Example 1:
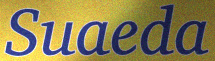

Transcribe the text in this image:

Suaeda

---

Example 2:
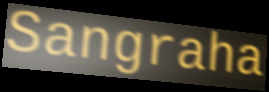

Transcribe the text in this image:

Sangraha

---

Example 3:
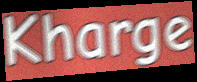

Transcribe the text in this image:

Kharge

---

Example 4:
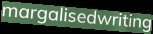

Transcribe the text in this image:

margalisedwriting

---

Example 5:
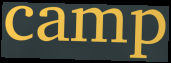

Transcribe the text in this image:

camp